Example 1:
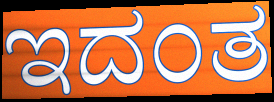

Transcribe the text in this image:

ಇದಂತ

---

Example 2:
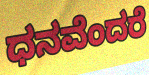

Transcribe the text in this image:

ಧನವೆಂದರೆ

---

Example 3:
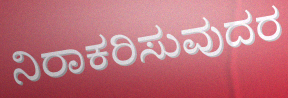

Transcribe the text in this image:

ನಿರಾಕರಿಸುವುದರ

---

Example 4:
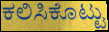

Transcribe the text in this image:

ಕಲಿಸಿಕೊಟ್ಟು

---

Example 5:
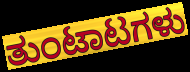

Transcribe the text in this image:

ತುಂಟಾಟಗಳು